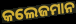
କଲେଜମାନ